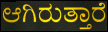
ಆಗಿರುತ್ತಾರೆ